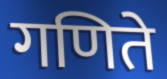
गणिते